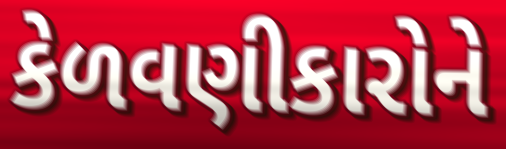
કેળવણીકારોને